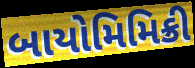
બાયોમિમિક્રી